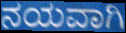
ನಯವಾಗಿ